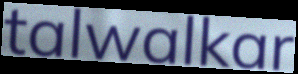
talwalkar